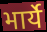
भार्ये